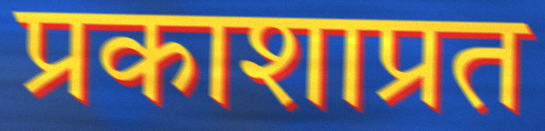
प्रकाशाप्रत